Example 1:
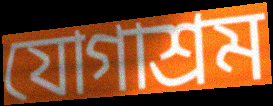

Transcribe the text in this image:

যোগাশ্রম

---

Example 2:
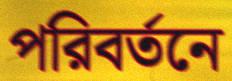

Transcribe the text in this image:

পরিবর্তনে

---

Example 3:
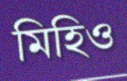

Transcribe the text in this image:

মিহিও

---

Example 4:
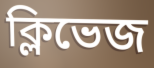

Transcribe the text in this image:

ক্লিভেজ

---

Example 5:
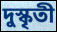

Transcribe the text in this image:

দুস্কৃতী